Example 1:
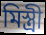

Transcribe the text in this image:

মিস্ত্ৰী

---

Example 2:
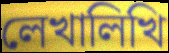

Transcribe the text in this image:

লেখালিখি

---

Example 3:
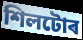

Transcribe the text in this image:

শিলটোৰ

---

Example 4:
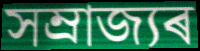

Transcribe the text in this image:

সম্ৰাজ্যৰ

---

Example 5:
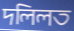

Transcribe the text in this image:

দলিলত